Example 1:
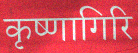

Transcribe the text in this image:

कृष्णागिरि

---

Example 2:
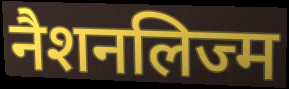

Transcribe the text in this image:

नैशनलिज्म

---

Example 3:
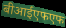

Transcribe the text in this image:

बीआईएफएफ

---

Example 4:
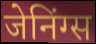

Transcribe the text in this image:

जेनिंग्स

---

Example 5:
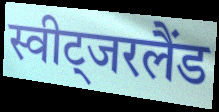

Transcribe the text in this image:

स्वीट्जरलैंड